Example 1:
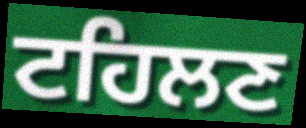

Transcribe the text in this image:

ਟਹਿਲਣ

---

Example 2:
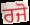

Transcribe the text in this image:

ਰਜੋ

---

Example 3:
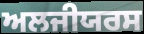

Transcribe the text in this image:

ਅਲਜੀਯਰਸ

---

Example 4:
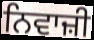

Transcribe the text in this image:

ਨਿਵਾਜ਼ੀ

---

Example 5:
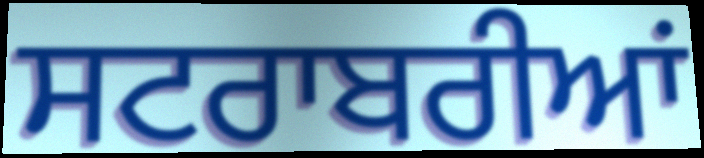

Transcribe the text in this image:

ਸਟਰਾਬਰੀਆਂ